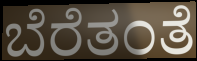
ಬೆರೆತಂತೆ